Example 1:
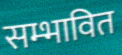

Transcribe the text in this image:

सम्भावित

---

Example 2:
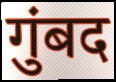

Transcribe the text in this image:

गुंबद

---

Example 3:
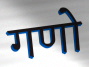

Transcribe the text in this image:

गणो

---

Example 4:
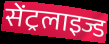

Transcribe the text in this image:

सेंट्रलाइज्ड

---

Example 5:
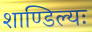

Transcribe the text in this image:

शाण्डिल्यः